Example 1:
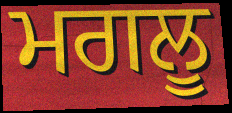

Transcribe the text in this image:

ਮਗਲੂ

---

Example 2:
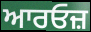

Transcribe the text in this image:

ਆਰਓਜ਼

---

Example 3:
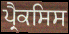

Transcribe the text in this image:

ਪ੍ਰੈਕਸਿਸ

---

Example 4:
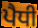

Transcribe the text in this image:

ਪੈਧੀ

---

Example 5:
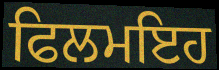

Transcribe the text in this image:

ਫਿਲਮਇਹ